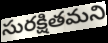
సురక్షితమని